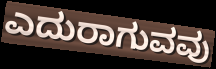
ಎದುರಾಗುವವು